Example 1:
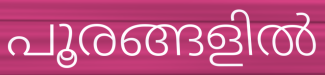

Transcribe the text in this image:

പൂരങ്ങളിൽ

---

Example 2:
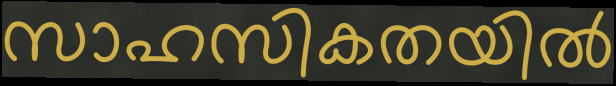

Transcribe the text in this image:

സാഹസികതയിൽ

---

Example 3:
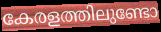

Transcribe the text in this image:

കേരളത്തിലുണ്ടോ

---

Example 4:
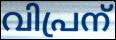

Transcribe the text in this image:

വിപ്രന്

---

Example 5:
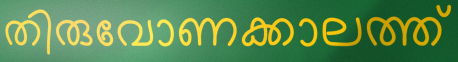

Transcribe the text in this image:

തിരുവോണക്കാലത്ത്